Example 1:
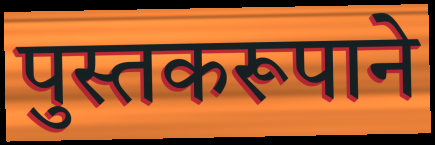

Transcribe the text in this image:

पुस्तकरूपाने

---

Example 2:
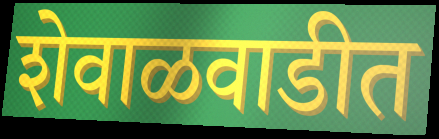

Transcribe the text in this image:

शेवाळवाडीत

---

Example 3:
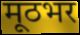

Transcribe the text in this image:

मूठभर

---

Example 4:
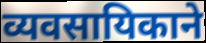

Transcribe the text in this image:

व्यवसायिकाने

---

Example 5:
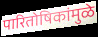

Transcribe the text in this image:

पारितोषिकांमुळे